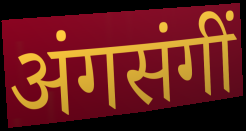
अंगसंगीं